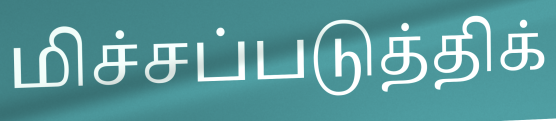
மிச்சப்படுத்திக்